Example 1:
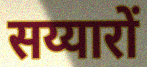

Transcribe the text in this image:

सय्यारों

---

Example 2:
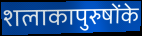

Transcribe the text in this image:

शलाकापुरुषोंके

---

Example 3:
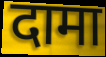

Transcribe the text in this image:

दामा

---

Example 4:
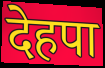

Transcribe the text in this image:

देहपा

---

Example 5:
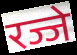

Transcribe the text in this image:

रज्जे